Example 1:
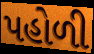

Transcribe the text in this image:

પહોળી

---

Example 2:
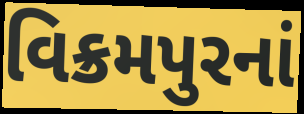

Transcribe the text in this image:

વિક્રમપુરનાં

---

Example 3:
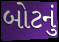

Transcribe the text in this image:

બોટનું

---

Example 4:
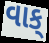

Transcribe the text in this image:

વાક્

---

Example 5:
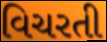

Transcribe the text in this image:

વિચરતી